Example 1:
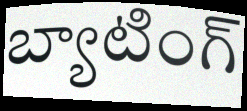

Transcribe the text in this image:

బ్యాటింగ్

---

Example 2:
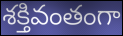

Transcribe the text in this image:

శక్తివంతంగా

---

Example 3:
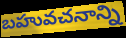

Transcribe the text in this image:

బహువచనాన్ని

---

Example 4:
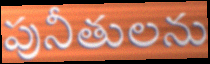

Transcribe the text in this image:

పునీతులను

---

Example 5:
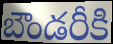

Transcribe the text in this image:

బౌండరీకి